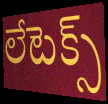
లేటెక్స్